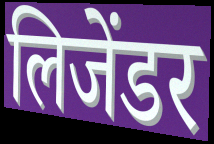
लिजेंडर